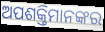
ଅପଶକ୍ତିମାନଙ୍କର